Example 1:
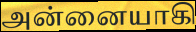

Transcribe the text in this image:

அன்னையாகி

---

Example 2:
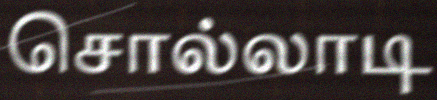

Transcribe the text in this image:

சொல்லாடி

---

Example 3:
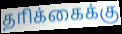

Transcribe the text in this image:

தரிக்கைக்கு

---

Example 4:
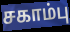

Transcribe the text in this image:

சகாம்பு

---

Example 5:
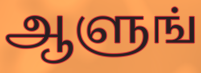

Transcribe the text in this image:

ஆளுங்